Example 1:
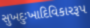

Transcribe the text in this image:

સુખદુઃખાદિવિકારરૂપ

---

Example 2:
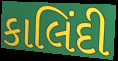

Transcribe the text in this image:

કાલિંદી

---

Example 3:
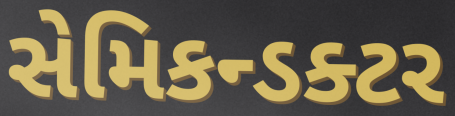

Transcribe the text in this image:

સેમિકન્ડક્ટર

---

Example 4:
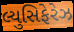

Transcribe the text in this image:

લ્યુસિફેરેઝ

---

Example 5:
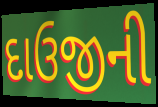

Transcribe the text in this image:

દાઉજીની